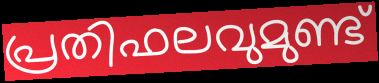
പ്രതിഫലവുമുണ്ട്